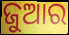
ଜୁଆର